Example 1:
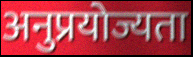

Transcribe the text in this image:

अनुप्रयोज्यता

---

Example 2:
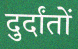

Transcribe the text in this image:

दुर्दांतों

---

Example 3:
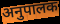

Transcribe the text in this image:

अनुपालक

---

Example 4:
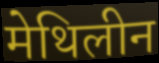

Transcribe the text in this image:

मेथिलीन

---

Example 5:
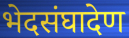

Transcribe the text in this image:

भेदसंघादेण